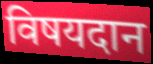
विषयदान